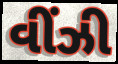
વીંઝી